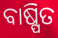
ବାଷ୍ପିତ